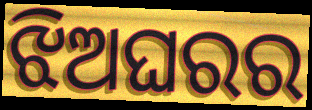
ଝିଅଘରର